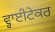
ਵ੍ਹਾਈਟੇਕਰ